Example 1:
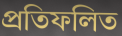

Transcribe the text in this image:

প্ৰতিফলিত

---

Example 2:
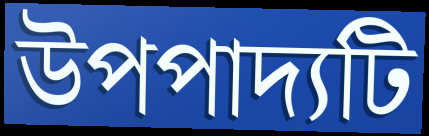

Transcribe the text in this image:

উপপাদ্যটি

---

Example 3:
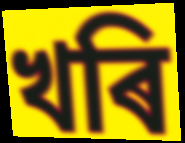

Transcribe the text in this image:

খৰি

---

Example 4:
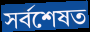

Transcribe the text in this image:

সৰ্বশেষত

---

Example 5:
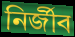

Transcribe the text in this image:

নিৰ্জীব